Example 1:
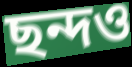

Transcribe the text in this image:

ছন্দও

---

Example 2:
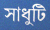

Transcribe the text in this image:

সাধুটি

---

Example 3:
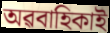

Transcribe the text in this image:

অৱবাহিকাই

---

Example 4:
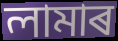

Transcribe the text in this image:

লামাৰ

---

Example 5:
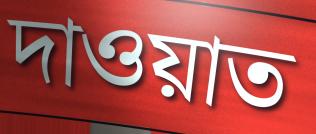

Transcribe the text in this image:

দাওয়াত